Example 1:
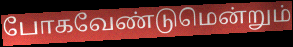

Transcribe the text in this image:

போகவேண்டுமென்றும்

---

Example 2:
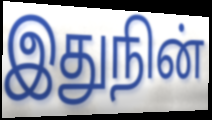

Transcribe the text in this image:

இதுநின்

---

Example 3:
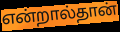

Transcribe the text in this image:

என்றால்தான்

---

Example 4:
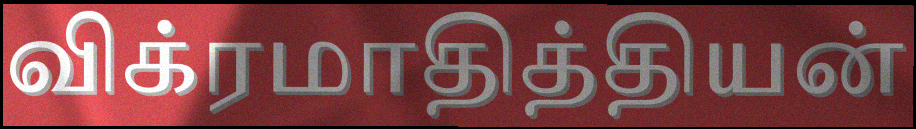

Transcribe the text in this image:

விக்ரமாதித்தியன்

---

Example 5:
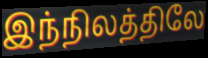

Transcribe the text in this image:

இந்நிலத்திலே